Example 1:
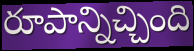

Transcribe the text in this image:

రూపాన్నిచ్చింది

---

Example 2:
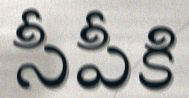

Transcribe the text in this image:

సీపీకి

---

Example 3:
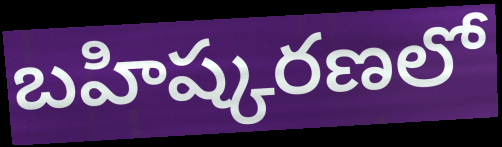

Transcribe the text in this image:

బహిష్కరణలో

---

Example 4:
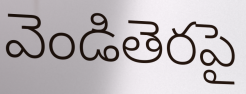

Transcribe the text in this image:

వెండితెరపై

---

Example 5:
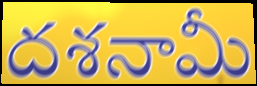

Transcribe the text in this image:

దశనామీ